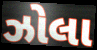
ઝોલા